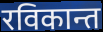
रविकान्त